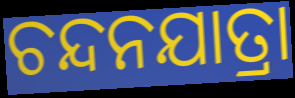
ଚନ୍ଦନଯାତ୍ରା